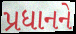
પ્રધાનને